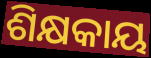
ଶିକ୍ଷକାୟ